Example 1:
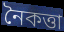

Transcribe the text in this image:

নৈকত্তা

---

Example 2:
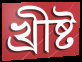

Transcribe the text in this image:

খ্ৰীষ্ট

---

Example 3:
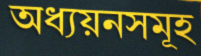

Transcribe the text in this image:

অধ্যয়নসমূহ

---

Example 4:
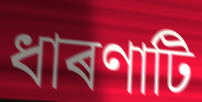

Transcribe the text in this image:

ধাৰণাটি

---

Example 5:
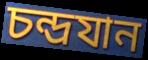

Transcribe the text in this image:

চন্দ্ৰযান